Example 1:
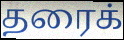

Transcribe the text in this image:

தரைக்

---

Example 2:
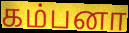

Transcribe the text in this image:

கம்பனா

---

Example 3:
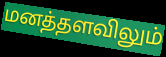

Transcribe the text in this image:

மனத்தளவிலும்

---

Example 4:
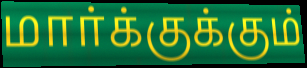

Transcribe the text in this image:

மார்க்குக்கும்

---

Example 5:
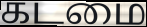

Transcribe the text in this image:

கடமை